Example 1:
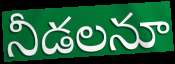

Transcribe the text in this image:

నీడలనూ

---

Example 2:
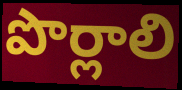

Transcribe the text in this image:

పొర్లాలి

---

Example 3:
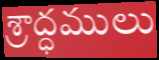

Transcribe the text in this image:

శ్రాద్ధములు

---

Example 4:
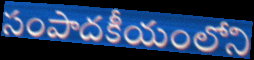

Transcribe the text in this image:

సంపాదకీయంలోని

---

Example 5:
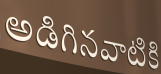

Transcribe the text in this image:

అడిగినవాటికి